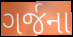
ગર્જના